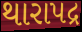
થારાપદ્ર